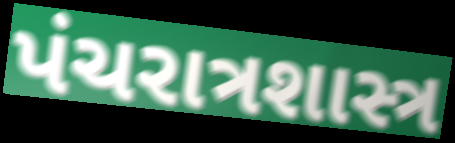
પંચરાત્રશાસ્ત્ર